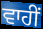
ਵਾਹੀਂ